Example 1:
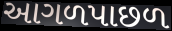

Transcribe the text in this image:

આગળપાછળ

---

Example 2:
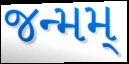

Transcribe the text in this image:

જન્મમ્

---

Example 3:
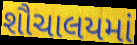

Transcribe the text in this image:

શૌચાલયમાં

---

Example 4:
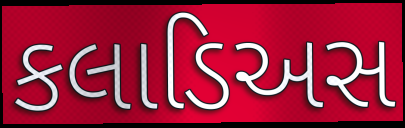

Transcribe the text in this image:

કલાડિઅસ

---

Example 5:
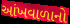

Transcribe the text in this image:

આંખવાળાનો